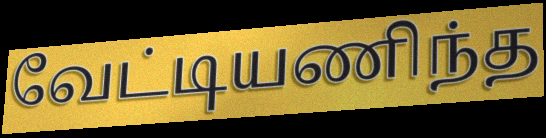
வேட்டியணிந்த